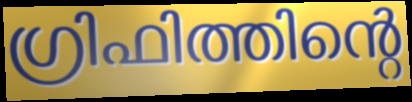
ഗ്രിഫിത്തിന്റെ